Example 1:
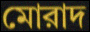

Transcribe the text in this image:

মোরাদ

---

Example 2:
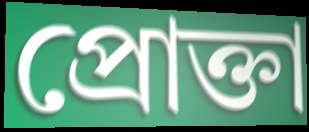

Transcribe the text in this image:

প্রোক্তা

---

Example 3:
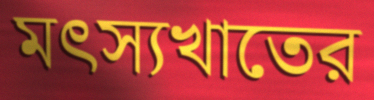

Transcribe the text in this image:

মৎস্যখাতের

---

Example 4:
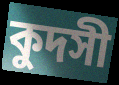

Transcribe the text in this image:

কুদসী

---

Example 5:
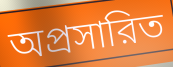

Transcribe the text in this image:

অপ্রসারিত